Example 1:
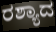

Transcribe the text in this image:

ರಶ್ಯಾದ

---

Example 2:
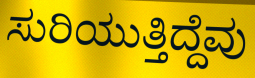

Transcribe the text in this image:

ಸುರಿಯುತ್ತಿದ್ದೆವು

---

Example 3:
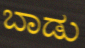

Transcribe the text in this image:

ಬಾಡು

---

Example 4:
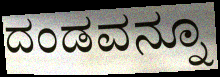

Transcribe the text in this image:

ದಂಡವನ್ನೂ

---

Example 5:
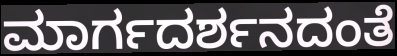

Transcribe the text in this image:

ಮಾರ್ಗದರ್ಶನದಂತೆ